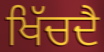
ਖਿੱਚਦੈ